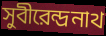
সুবীরেন্দ্রনাথ